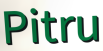
Pitru